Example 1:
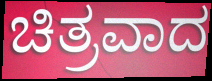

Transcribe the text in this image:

ಚಿತ್ರವಾದ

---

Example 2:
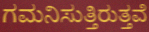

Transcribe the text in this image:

ಗಮನಿಸುತ್ತಿರುತ್ತವೆ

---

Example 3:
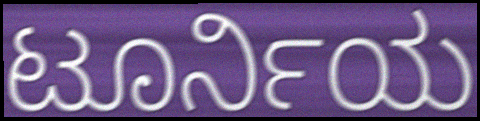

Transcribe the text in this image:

ಟೂರ್ನಿಯ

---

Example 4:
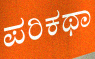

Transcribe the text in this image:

ಪರಿಕಥಾ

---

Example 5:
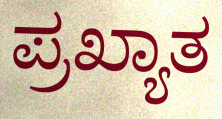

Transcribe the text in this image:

ಪ್ರಖ್ಯಾತ